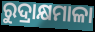
ରୁଦ୍ରାକ୍ଷମାଳା